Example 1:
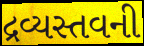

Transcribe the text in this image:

દ્રવ્યસ્તવની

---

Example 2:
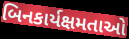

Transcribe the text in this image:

બિનકાર્યક્ષમતાઓ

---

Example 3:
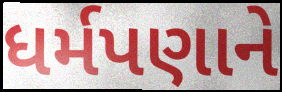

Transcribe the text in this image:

ધર્મપણાને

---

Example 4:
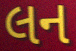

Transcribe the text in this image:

લન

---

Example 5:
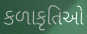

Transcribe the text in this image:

કળાકૃતિઓ